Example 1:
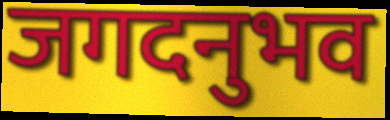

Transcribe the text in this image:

जगदनुभव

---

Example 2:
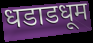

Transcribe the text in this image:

धडाडधूम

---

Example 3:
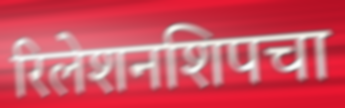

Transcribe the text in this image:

रिलेशनशिपचा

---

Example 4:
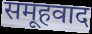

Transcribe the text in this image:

समूहवाद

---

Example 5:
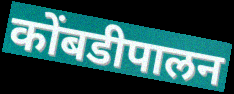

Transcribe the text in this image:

कोंबडीपालन